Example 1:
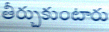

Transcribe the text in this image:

తీర్చుకుంటారు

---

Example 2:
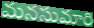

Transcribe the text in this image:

మనసుమారి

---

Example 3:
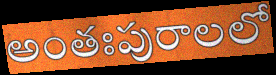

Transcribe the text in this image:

అంతఃపురాలలో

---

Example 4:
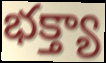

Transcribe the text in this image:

భక్త్యా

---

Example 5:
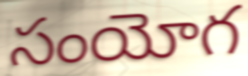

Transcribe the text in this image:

సంయోగ